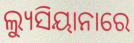
ଲ୍ୟୁସିୟାନାରେ